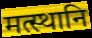
मत्स्थानि